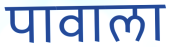
पावाला